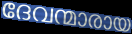
ദേവന്മാരായ